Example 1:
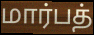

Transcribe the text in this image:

மார்பத்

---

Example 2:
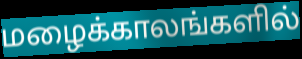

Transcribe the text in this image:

மழைக்காலங்களில்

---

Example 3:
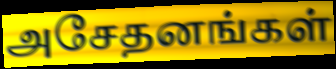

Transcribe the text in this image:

அசேதனங்கள்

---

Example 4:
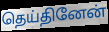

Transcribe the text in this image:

தெய்தினேன்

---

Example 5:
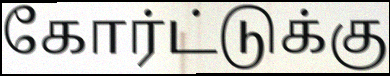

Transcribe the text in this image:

கோர்ட்டுக்கு